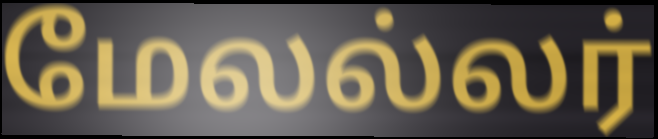
மேலல்லர்